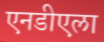
एनडीएला